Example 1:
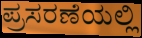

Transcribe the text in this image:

ಪ್ರಸರಣೆಯಲ್ಲಿ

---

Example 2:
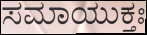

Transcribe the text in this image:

ಸಮಾಯುಕ್ತಃ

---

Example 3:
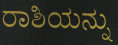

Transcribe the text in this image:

ರಾಶಿಯನ್ನು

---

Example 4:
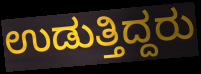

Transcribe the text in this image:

ಉಡುತ್ತಿದ್ದರು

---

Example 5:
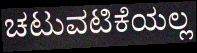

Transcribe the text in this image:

ಚಟುವಟಿಕೆಯಲ್ಲ